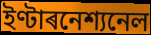
ইণ্টাৰনেশ্যনেল